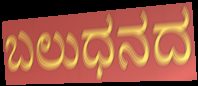
ಬಲುಧನದ